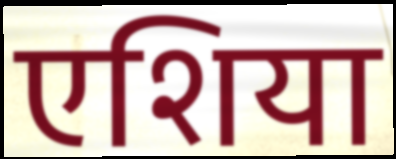
एशिया